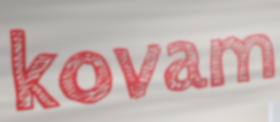
kovam